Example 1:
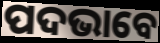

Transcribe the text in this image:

ପଦଭାବେ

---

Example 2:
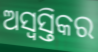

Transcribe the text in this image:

ଅସ୍ୱସ୍ତିକର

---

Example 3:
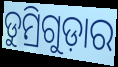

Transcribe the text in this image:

ଡୁମ୍ରିଗୁଡ଼ାର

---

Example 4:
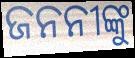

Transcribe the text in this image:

ଜନନୀଙ୍କୁ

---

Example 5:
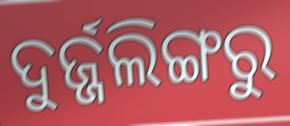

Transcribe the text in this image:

ଦୁର୍ଜ୍ଜଲିଙ୍ଗରୁ